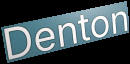
Denton